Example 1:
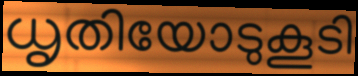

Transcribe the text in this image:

ധൃതിയോടുകൂടി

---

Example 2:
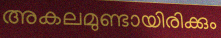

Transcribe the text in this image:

അകലമുണ്ടായിരിക്കും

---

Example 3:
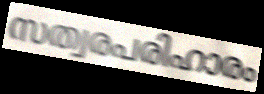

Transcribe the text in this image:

സത്വരപരിഹാരം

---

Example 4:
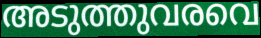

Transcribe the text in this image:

അടുത്തുവരവെ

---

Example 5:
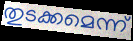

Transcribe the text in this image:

തുടക്കമെന്ന്